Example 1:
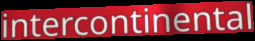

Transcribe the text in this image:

intercontinental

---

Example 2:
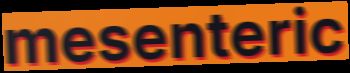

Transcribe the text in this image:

mesenteric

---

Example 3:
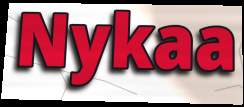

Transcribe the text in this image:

Nykaa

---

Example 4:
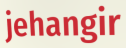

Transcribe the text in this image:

jehangir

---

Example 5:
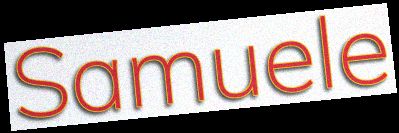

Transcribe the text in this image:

Samuele